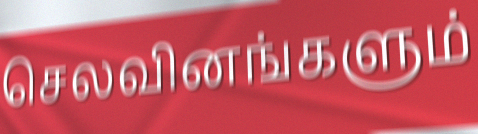
செலவினங்களும்